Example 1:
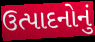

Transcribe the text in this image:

ઉત્પાદનોનું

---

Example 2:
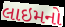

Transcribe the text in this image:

લાઇમનો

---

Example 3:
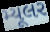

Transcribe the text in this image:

મ્યૂલર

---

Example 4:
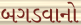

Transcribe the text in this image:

બગડવાનો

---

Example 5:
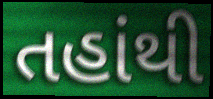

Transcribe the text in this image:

તહાંથી